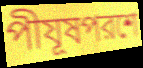
পীযূষপরশে